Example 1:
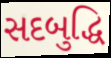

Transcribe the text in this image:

સદબુદ્ધિ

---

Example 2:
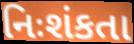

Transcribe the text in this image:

નિઃશંકતા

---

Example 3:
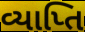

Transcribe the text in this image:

વ્યાપ્તિ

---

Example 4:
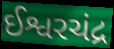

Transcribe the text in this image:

ઈશ્વરચંદ્ર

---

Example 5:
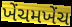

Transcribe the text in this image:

ખેંચમખેંચ